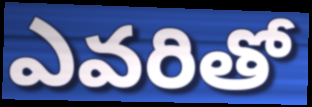
ఎవరితో